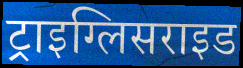
ट्राइग्लिसराइड